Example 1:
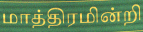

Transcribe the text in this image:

மாத்திரமின்றி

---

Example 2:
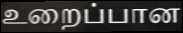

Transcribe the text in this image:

உறைப்பான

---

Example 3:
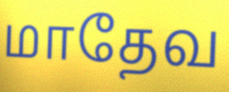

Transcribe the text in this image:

மாதேவ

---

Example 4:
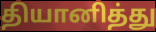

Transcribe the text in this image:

தியானித்து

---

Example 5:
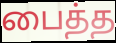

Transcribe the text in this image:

பைத்த